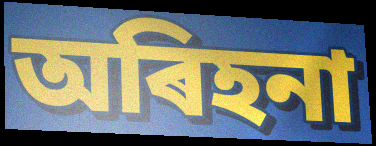
অৰিহনা